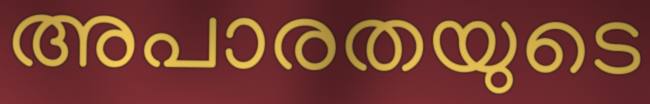
അപാരതയുടെ